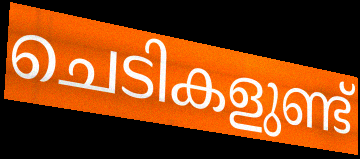
ചെടികളുണ്ട്